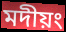
মদীয়ং